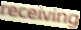
receiving